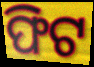
ଫିଟ